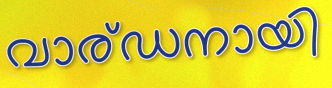
വാര്ഡനായി